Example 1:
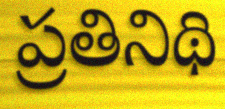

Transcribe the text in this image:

ప్రతినిథి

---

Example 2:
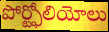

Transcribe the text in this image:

పోర్ట్ఫోలియోలు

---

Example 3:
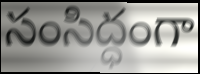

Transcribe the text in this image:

సంసిద్ధంగా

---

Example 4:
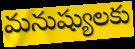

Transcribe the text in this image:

మనుష్యులకు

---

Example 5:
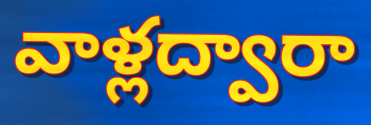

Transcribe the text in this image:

వాళ్లద్వారా